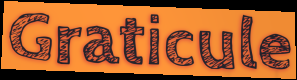
Graticule